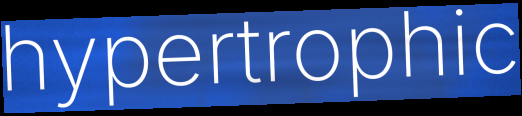
hypertrophic